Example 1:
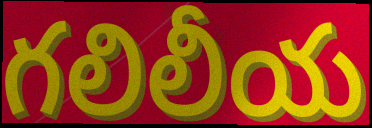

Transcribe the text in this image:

గలిలీయ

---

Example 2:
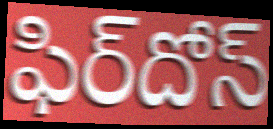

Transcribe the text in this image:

ఫిర్‌దోస్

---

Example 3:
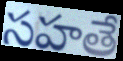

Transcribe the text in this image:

సహతే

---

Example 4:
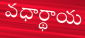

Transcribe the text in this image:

వధార్థాయ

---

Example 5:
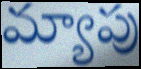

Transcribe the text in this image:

మ్యాపు